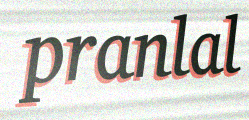
pranlal